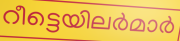
റീട്ടെയിലർമാർ